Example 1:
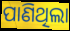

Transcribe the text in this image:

ପାଣିଥିଲା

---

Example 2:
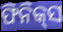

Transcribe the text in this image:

ଫିନିକ୍‍ସ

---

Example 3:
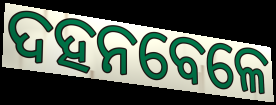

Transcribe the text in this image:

ଦହନବେଳେ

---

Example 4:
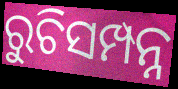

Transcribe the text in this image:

ରୁଚିସମ୍ପନ୍ନ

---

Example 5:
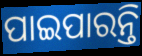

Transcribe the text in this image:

ପାଇପାରନ୍ତି